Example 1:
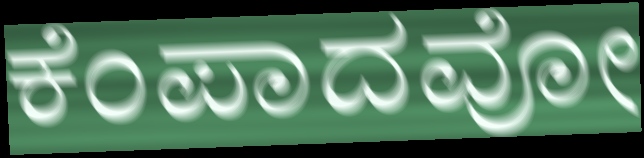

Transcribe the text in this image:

ಕೆಂಪಾದವೋ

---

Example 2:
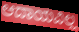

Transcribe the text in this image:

ಆದಾಯವಿಲ್ಲ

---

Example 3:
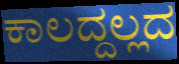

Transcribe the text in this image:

ಕಾಲದ್ದಲ್ಲದ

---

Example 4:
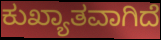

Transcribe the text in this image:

ಕುಖ್ಯಾತವಾಗಿದೆ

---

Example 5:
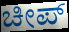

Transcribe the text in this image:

ಚೀಪ್